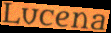
Lucena